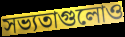
সভ্যতাগুলোও